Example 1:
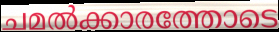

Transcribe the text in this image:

ചമൽക്കാരത്തോടെ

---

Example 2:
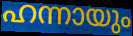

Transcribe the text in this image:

ഹന്നായും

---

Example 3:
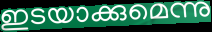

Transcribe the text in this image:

ഇടയാക്കുമെന്നു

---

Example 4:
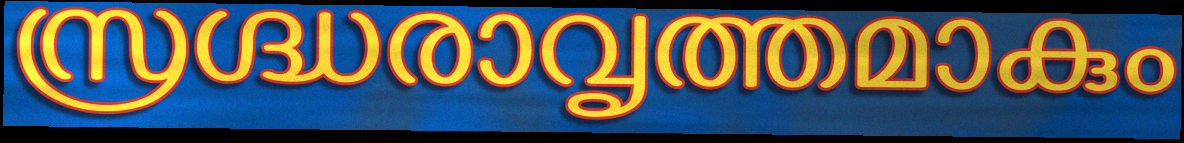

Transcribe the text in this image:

സ്രഗ്ദ്ധരാവൃത്തമാകും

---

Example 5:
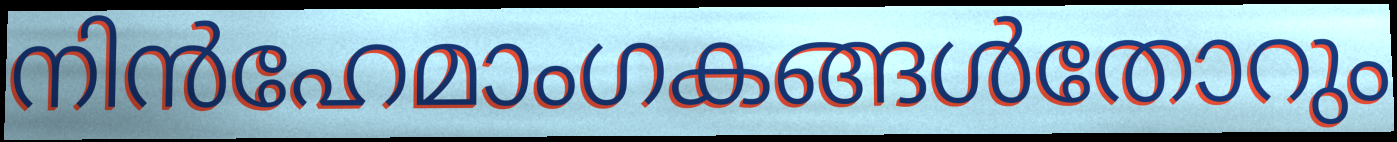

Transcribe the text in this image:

നിൻഹേമാംഗകങ്ങൾതോറും